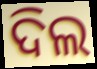
ଦିଲ